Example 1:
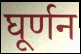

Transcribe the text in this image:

घूर्णन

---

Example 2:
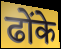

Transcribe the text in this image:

ढोंके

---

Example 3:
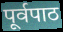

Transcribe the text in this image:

पूर्वपाठ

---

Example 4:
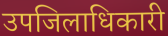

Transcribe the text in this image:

उपजिलाधिकारी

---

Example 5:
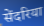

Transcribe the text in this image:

सेंदरिया